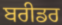
ਬਰੀਡਰ